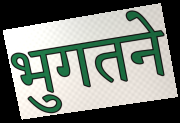
भुगतने